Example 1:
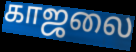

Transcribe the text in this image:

காஜலை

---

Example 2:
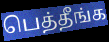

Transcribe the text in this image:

பெத்தீங்க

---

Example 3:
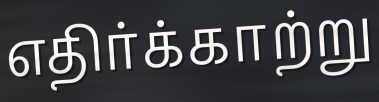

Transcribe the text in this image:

எதிர்க்காற்று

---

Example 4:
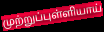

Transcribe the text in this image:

முற்றுப்புள்ளியாய்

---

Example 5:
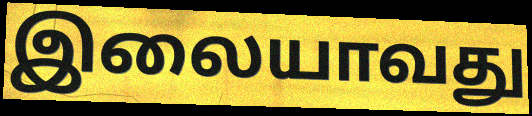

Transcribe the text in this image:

இலையாவது